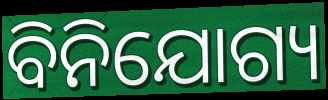
ବିନିଯୋଗ୍ୟ